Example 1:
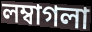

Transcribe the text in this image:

লম্বাগলা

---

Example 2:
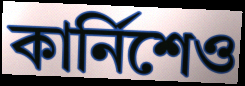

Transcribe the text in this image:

কার্নিশেও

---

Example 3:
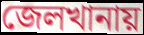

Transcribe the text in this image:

জেলখানায়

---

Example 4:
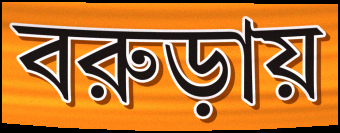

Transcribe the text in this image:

বরুড়ায়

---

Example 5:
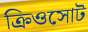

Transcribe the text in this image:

ক্রিওসোট